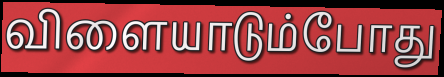
விளையாடும்போது